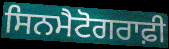
ਸਿਨਮੈਟੋਗਰਾਫ਼ੀ